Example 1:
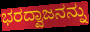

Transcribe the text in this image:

ಭರದ್ವಾಜನನ್ನು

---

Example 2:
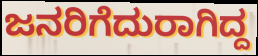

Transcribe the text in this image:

ಜನರಿಗೆದುರಾಗಿದ್ದ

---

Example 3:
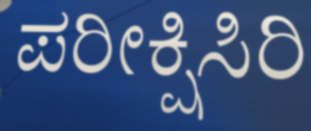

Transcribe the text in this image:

ಪರೀಕ್ಷಿಸಿರಿ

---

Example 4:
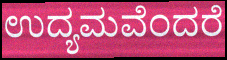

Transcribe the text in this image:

ಉದ್ಯಮವೆಂದರೆ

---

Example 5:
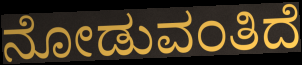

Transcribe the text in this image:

ನೋಡುವಂತಿದೆ